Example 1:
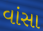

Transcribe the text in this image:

વાંસા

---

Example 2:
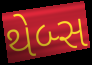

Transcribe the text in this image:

થેબ્સ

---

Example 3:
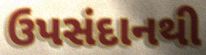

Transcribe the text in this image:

ઉપસંદાનથી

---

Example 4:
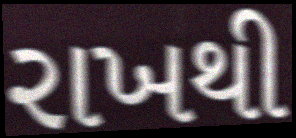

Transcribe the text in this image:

રાખથી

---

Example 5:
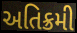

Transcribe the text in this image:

અતિક્રમી